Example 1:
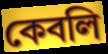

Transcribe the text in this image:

কেবলি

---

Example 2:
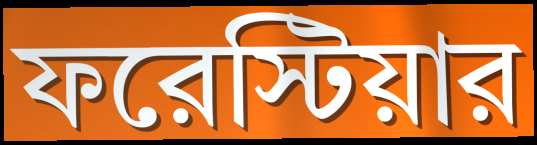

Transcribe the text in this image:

ফরেস্টিয়ার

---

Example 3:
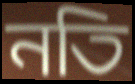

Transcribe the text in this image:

নতি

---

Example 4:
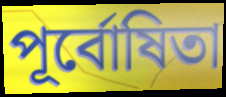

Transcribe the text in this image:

পূর্বোষিতা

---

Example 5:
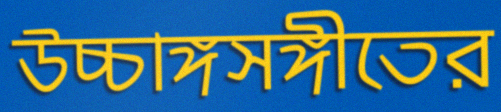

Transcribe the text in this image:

উচ্চাঙ্গসঙ্গীতের